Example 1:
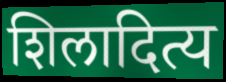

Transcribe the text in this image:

शिलादित्य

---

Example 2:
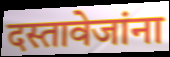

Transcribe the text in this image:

दस्तावेजांना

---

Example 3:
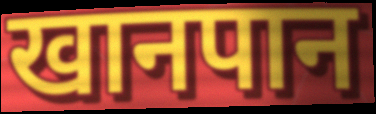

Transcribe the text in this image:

खानपान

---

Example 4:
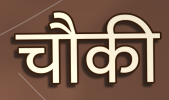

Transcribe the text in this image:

चौकी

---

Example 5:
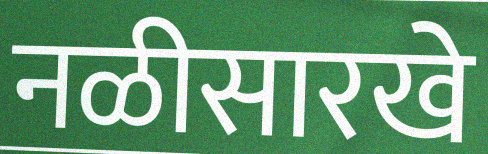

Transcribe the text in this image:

नळीसारखे